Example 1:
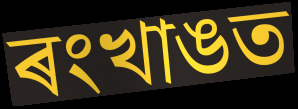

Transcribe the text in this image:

ৰংখাঙত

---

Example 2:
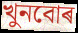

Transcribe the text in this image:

খুনবোৰ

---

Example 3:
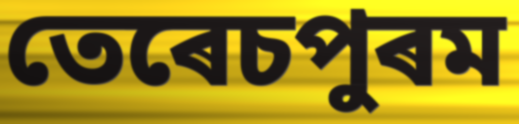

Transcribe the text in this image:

তেৰেচপুৰম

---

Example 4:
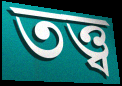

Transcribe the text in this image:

তত্ত্ব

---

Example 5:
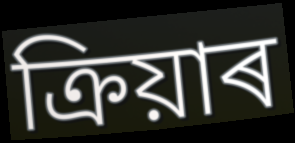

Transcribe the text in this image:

ক্ৰিয়াৰ